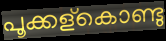
പൂക്കള്കൊണ്ടു